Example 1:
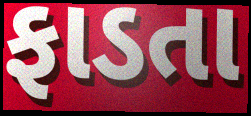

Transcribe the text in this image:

ફાડતા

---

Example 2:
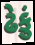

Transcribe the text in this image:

ઢેકું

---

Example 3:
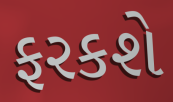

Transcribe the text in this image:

ફરકશે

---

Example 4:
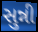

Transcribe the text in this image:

સુન્ની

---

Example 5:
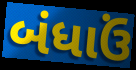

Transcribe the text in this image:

બંધાઉં